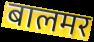
बालमर